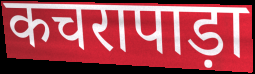
कचरापाड़ा